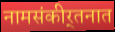
नामसंकीर्तनात